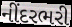
નીંદરભરી